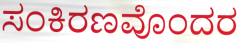
ಸಂಕಿರಣವೊಂದರ